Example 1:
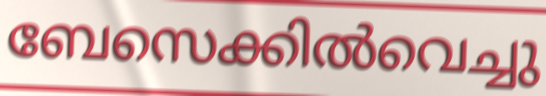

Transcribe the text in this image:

ബേസെക്കിൽവെച്ചു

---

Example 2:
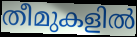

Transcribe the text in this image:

തീമുകളിൽ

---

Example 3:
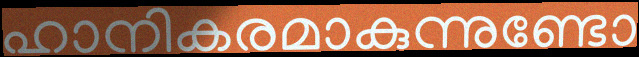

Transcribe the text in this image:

ഹാനികരമാകുന്നുണ്ടോ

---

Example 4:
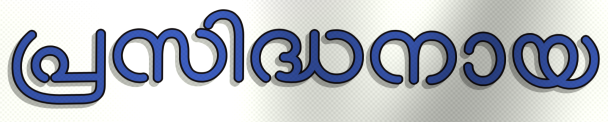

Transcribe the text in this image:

പ്രസിദ്ധനായ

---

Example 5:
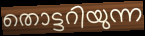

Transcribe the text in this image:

തൊട്ടറിയുന്ന